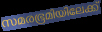
സമരഭൂമിയിലേക്ക്